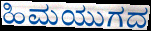
ಹಿಮಯುಗದ